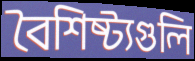
বৈশিষ্ট্যগুলি